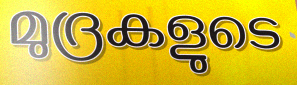
മുദ്രകളുടെ